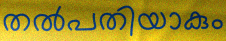
തൽപതിയാകും